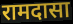
रामदासा